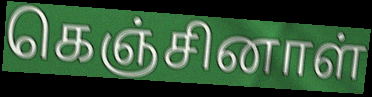
கெஞ்சினாள்